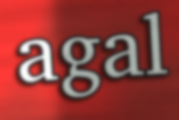
agal